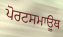
ਪੋਰਟਸਮਾਊਥ